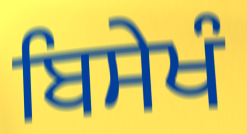
ਬਿਸੇਖੰ